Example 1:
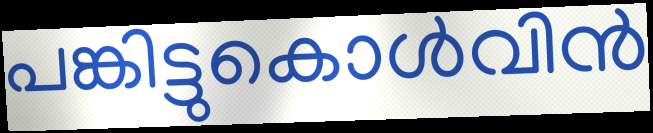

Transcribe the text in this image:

പങ്കിട്ടുകൊൾവിൻ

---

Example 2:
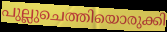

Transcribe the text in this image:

പുല്ലുചെത്തിയൊരുക്കി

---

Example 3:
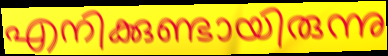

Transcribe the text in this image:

എനിക്കുണ്ടായിരുന്നു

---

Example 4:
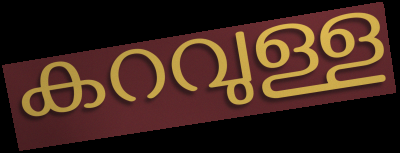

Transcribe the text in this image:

കറവുള്ള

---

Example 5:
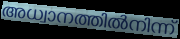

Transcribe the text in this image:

അധ്വാനത്തിൽനിന്ന്